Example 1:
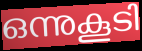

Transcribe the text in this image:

ഒന്നുകൂടി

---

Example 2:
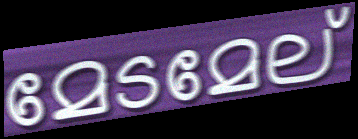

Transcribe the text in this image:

മേടമേല്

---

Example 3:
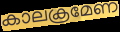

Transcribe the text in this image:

കാലക്രമേണ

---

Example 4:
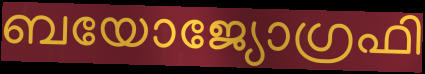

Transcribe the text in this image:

ബയോജ്യോഗ്രഫി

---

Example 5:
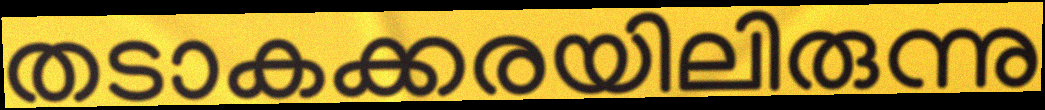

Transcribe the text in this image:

തടാകക്കരയിലിരുന്നു